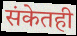
संकेतही